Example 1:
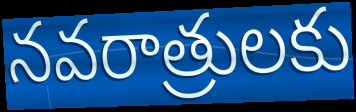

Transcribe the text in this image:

నవరాత్రులకు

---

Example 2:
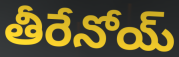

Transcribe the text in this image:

తీరేనోయ్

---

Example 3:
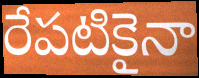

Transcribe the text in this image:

రేపటికైనా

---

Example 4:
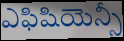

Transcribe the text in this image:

ఎఫిషియెన్సీ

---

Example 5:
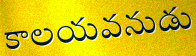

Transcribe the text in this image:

కాలయవనుడు